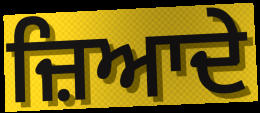
ਜ਼ਿਆਦੇ